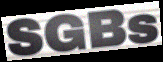
SGBs